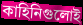
কাহিনিগুলোই